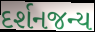
દર્શનજન્ય